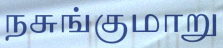
நசுங்குமாறு